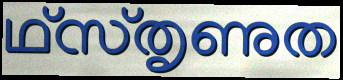
ഥ്സ്തൃണുത